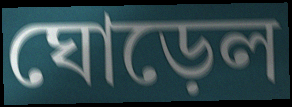
ঘোড়েল